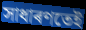
সাধাৰণতেই